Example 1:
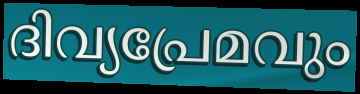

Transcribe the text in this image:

ദിവ്യപ്രേമവും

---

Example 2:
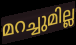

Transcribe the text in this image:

മറച്ചുമില്ല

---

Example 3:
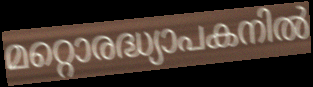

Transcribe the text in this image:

മറ്റൊരദ്ധ്യാപകനിൽ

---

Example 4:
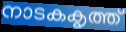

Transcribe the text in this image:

നാടകകൃത്ത്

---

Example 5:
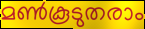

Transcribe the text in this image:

മൺകൂടുതരാം